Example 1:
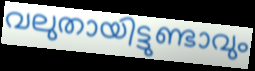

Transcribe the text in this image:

വലുതായിട്ടുണ്ടാവും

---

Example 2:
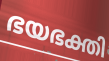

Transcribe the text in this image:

ഭയഭക്തി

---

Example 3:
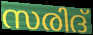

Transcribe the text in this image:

സരിദ്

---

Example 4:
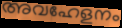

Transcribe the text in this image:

അവഹേളനം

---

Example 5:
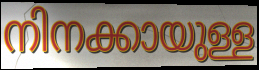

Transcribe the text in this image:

നിനക്കായുള്ള